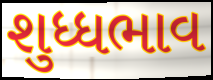
શુધ્ધભાવ